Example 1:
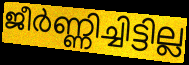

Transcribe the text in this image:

ജീർണ്ണിച്ചിട്ടില്ല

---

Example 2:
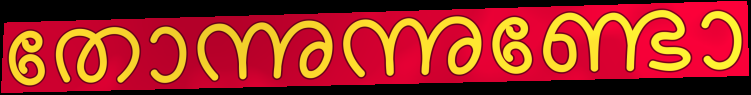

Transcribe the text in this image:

തോന്നുന്നുണ്ടോ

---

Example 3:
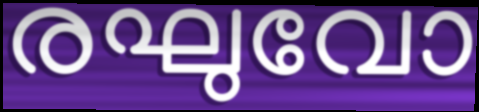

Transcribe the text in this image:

രഘുവോ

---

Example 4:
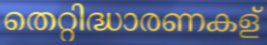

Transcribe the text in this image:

തെറ്റിദ്ധാരണകള്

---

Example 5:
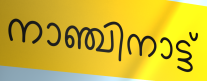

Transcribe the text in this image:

നാഞ്ചിനാട്ട്